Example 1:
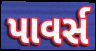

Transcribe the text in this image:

પાવર્સ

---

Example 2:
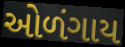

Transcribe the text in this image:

ઓળંગાય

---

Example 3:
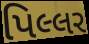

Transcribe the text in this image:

પિલ્લર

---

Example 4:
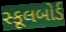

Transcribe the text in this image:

સ્કૂલબોર્ડ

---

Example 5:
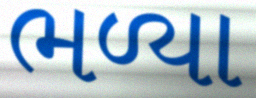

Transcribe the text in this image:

ભળ્યા